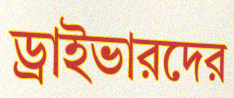
ড্রাইভারদের